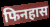
फिनहास